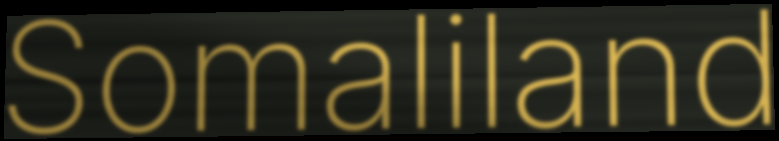
Somaliland